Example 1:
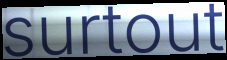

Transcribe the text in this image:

surtout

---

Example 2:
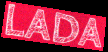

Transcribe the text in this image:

LADA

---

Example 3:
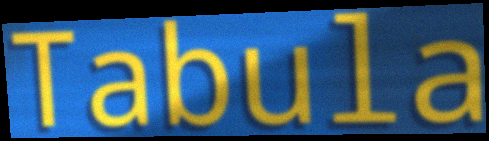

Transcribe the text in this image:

Tabula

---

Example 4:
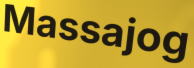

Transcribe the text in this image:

Massajog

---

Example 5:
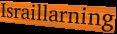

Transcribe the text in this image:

Israillarning